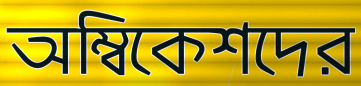
অম্বিকেশদের